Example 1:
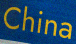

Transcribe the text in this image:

China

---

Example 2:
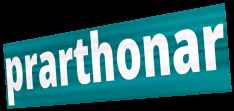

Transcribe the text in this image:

prarthonar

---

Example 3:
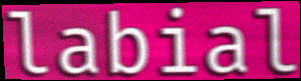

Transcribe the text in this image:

labial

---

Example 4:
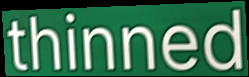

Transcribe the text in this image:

thinned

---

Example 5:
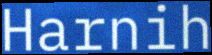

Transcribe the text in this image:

Harnih